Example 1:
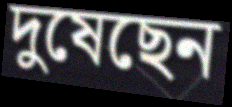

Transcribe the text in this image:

দুষেছেন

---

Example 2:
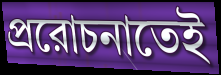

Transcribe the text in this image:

প্ররোচনাতেই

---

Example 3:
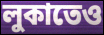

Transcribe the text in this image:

লুকাতেও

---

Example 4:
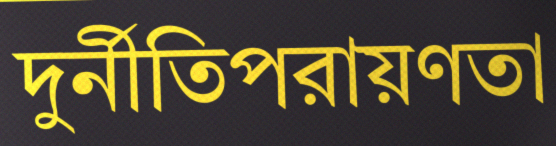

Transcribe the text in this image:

দুর্নীতিপরায়ণতা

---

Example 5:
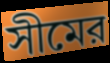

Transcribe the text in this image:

সীমের